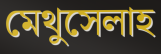
মেথুসেলাহ